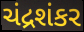
ચંદ્રશંકર